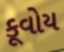
કૂવોય